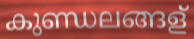
കുണ്ഡലങ്ങള്